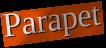
Parapet